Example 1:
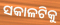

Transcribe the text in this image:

ସକାଳଟିକୁ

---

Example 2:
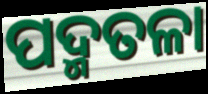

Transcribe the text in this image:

ପଦ୍ମତଳା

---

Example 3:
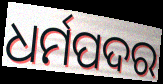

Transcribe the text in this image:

ଧର୍ମପଦର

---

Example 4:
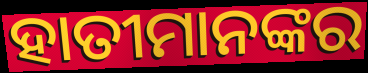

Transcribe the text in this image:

ହାତୀମାନଙ୍କର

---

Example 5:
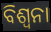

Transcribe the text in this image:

ବିଶ୍ୱନା